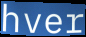
hver